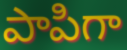
పాపిగా